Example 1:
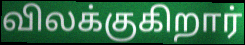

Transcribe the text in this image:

விலக்குகிறார்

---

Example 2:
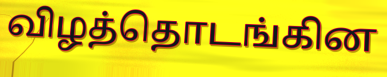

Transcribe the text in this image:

விழத்தொடங்கின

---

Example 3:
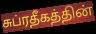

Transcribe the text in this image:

சுப்ரதீகத்தின்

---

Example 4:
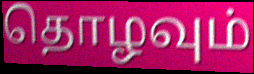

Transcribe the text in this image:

தொழவும்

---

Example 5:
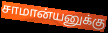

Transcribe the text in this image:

சாமான்யனுக்கு